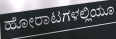
ಹೋರಾಟಗಳಲ್ಲಿಯೂ